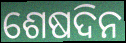
ଶେଷଦିନ